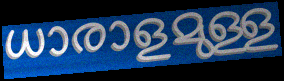
ധാരാളമുള്ള